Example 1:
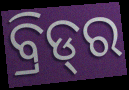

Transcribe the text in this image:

ବ୍ରିଡ୍‌ର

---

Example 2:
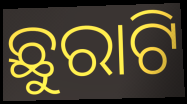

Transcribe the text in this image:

ଛୁରାଟି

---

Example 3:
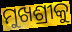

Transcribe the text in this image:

ମୁଖଶ୍ରୀକୁ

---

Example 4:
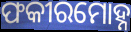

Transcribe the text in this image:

ଫକୀରମୋହ୍ନ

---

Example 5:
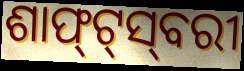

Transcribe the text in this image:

ଶାଫ୍‍ଟ୍‍ସ୍‍ବରୀ